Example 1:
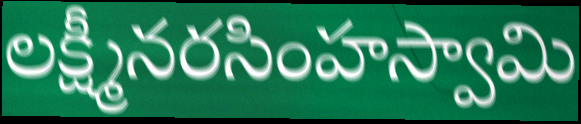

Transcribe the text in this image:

లక్ష్మీనరసింహస్వామి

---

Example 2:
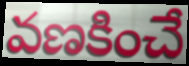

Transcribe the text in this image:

వణకించే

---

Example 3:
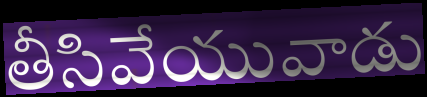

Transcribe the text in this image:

తీసివేయువాడు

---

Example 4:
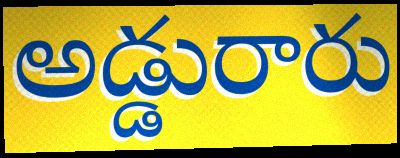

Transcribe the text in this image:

అడ్డురారు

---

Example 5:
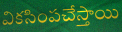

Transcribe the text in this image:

వికసింపచేస్తాయి